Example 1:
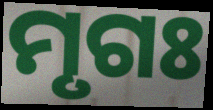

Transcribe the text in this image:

ମୃଗଃ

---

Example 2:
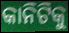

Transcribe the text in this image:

କାନିଟିକୁ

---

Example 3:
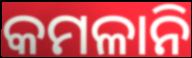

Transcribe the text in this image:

କମଳାନି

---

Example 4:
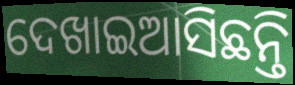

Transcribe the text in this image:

ଦେଖାଇଆସିଛନ୍ତି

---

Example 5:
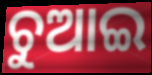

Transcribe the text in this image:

ଚୁଆଇ